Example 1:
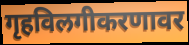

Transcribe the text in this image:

गृहविलगीकरणावर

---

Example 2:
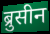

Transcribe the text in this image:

ब्रुसीन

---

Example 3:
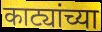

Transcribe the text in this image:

काट्यांच्या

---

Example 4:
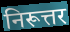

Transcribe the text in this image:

निरूत्तर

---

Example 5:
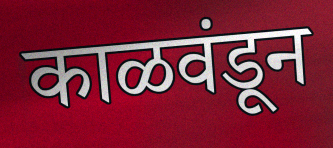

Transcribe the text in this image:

काळवंडून